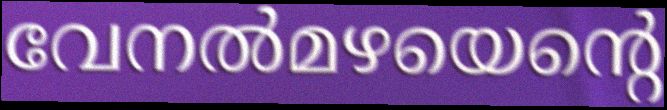
വേനൽമഴയെന്റെ